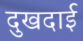
दुखदाई